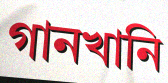
গানখানি